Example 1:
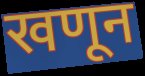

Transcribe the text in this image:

खणून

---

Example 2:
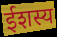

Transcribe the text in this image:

ईशस्य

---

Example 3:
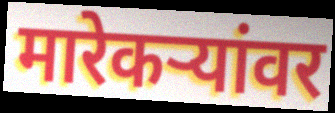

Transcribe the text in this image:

मारेकऱ्यांवर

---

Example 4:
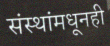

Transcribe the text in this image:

संस्थांमधूनही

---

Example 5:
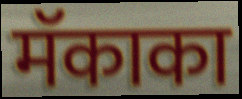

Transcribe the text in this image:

मॅकाका